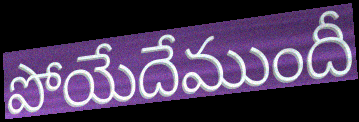
పోయేదేముందీ